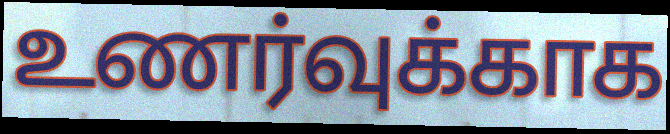
உணர்வுக்காக